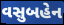
વસુબહેન